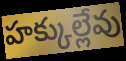
హక్కుల్లేవు